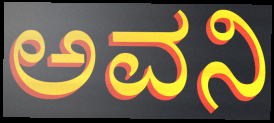
ಅವನಿ